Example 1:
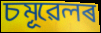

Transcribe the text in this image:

চমূৱেলৰ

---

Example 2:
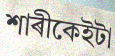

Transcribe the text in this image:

শাৰীকেইটা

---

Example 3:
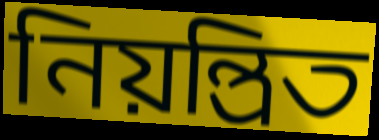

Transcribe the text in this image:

নিয়ন্ত্ৰিত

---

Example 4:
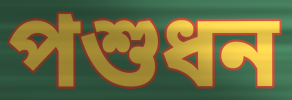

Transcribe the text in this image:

পশুধন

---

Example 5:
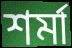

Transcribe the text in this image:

শৰ্মা